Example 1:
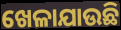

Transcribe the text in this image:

ଖେଳାଯାଉଛି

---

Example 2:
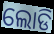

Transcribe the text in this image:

ଲୋଡି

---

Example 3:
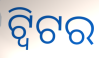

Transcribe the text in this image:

ଟ୍ୱିଟର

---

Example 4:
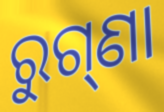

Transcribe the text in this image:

ରୁଗ୍‌ଣା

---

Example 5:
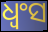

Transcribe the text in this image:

ଧ୍ୱଂସ